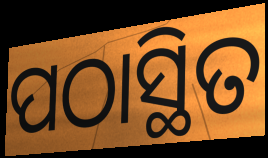
ପଠାସ୍ଥିତ